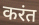
करंत